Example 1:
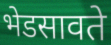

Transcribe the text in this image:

भेडसावते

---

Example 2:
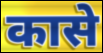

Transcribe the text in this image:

कासे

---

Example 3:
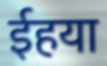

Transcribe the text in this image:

ईहया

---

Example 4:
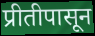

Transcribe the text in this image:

प्रीतीपासून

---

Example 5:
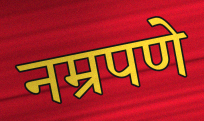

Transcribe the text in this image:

नम्रपणे